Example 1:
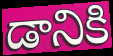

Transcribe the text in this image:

డానికి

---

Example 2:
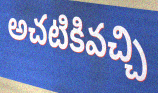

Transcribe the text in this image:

అచటికివచ్చి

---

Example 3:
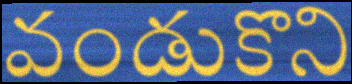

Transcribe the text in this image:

వండుకొని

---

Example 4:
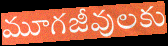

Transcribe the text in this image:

మూగజీవులకు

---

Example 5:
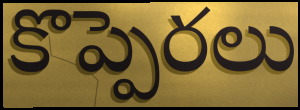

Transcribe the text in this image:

కొప్పెరలు